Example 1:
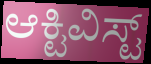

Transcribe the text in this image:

ಆಕ್ಟಿವಿಸ್ಟ್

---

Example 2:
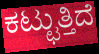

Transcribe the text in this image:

ಕಟ್ಟುತ್ತಿದೆ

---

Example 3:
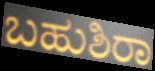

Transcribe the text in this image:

ಬಹುಶಿರಾ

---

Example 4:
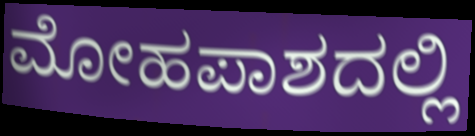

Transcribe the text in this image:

ಮೋಹಪಾಶದಲ್ಲಿ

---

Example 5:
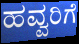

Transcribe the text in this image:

ಹವ್ವರಿಗೆ